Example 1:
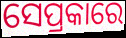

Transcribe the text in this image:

ସେପ୍ରକାରେ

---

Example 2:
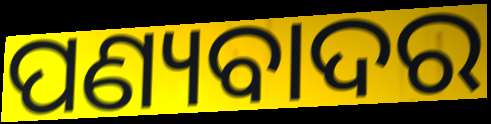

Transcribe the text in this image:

ପଣ୍ୟବାଦର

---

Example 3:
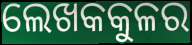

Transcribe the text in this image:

ଲେଖକକୁଳର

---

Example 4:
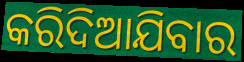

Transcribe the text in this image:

କରିଦିଆଯିବାର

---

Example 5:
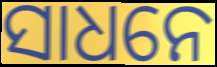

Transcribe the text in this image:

ସାଧନେ